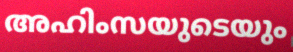
അഹിംസയുടെയും